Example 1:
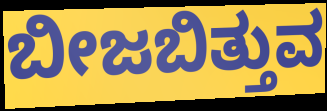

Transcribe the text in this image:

ಬೀಜಬಿತ್ತುವ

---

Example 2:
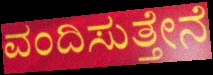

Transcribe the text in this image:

ವಂದಿಸುತ್ತೇನೆ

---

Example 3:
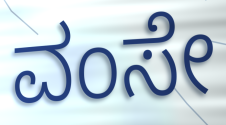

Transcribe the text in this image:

ವಂಸೇ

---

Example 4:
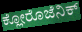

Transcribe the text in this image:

ಕ್ಲೋರೊಜೆನಿಕ್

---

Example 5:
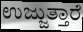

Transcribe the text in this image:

ಉಜ್ಜುತ್ತಾರೆ